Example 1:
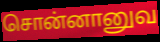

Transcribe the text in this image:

சொன்னானுவ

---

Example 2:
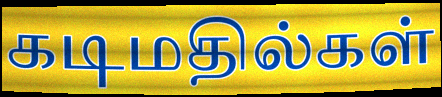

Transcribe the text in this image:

கடிமதில்கள்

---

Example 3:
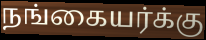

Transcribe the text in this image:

நங்கையர்க்கு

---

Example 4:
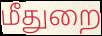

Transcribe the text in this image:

மீதுறை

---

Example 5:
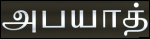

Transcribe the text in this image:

அபயாத்